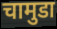
चामुडा